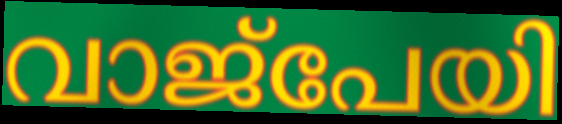
വാജ്പേയി